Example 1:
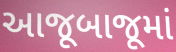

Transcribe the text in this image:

આજૂબાજૂમાં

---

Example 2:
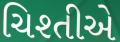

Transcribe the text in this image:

ચિશ્તીએ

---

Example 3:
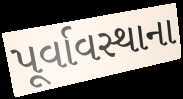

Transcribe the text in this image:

પૂર્વાવસ્થાના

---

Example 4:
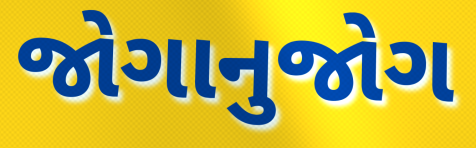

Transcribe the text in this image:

જોગાનુજોગ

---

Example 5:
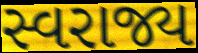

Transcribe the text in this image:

સ્વરાજ્ય